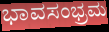
ಭಾವಸಂಭ್ರಮ